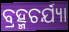
ବ୍ରହ୍ମଚର୍ଯ୍ୟା